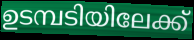
ഉടമ്പടിയിലേക്ക്